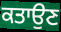
ਕਤਾਉਣ